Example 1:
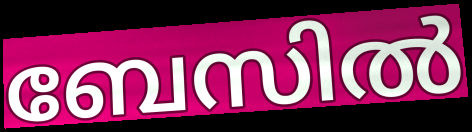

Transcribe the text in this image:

ബേസിൽ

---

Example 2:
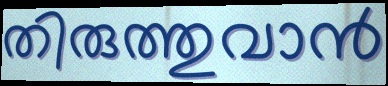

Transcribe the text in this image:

തിരുത്തുവാൻ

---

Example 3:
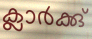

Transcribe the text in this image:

ക്ലാർക്കു്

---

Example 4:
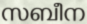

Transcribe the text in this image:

സബീന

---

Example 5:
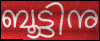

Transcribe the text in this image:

ബൂട്ടിനു